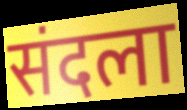
संदला